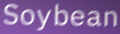
Soybean